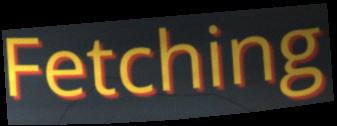
Fetching